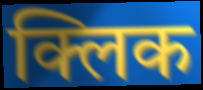
क्लिक